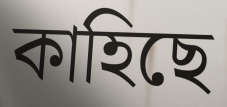
কাহিছে